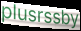
plusrssby